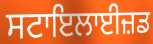
ਸਟਾਇਲਾਈਜ਼ਡ